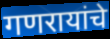
गणरायांचे